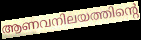
ആണവനിലയത്തിന്റെ